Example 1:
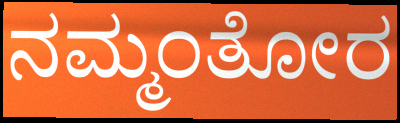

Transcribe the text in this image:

ನಮ್ಮಂತೋರ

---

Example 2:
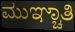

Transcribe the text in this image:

ಮುಞ್ಚಾತಿ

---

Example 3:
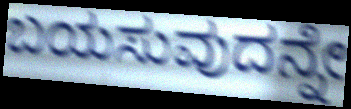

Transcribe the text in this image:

ಬಯಸುವುದನ್ನೇ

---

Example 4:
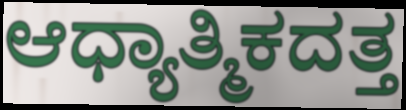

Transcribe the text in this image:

ಆಧ್ಯಾತ್ಮಿಕದತ್ತ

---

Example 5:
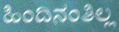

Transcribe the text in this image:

ಹಿಂದಿನಂತಿಲ್ಲ